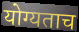
योग्यताच